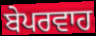
ਬੇਪਰਵਾਹ